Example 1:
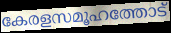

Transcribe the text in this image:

കേരളസമൂഹത്തോട്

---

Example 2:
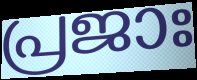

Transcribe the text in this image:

പ്രജാഃ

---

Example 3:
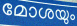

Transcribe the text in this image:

മോശയും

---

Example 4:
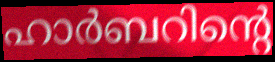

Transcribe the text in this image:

ഹാർബറിന്റെ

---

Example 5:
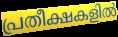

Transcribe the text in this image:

പ്രതീക്ഷകളിൽ